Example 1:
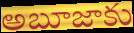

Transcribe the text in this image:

అబూజాకు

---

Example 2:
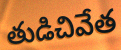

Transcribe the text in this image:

తుడిచివేత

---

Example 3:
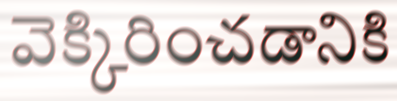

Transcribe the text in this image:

వెక్కిరించడానికి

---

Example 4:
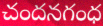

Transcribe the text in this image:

చందనగంధ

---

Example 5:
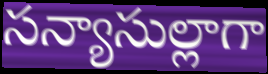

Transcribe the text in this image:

సన్యాసుల్లాగా